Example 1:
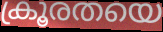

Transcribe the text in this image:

ക്രൂരതയെ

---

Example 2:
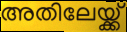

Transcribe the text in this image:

അതിലേയ്ക്ക്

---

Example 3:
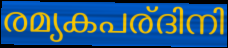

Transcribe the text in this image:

രമ്യകപര്ദിനി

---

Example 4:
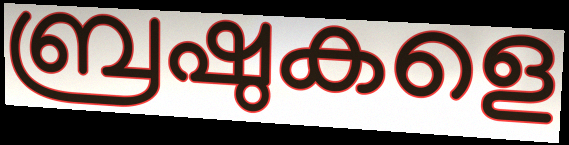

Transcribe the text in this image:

ബ്രഷുകളെ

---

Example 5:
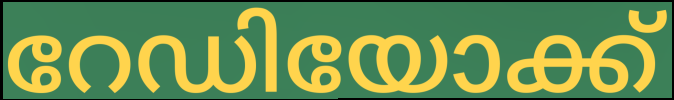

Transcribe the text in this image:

റേഡിയോക്ക്